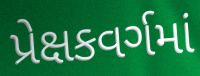
પ્રેક્ષકવર્ગમાં